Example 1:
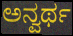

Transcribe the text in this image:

ಅನ್ವರ್ಥ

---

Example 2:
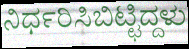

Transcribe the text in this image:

ನಿರ್ಧರಿಸಿಬಿಟ್ಟಿದ್ದಳು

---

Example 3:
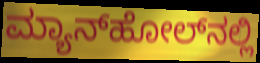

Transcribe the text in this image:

ಮ್ಯಾನ್‌ಹೋಲ್‌ನಲ್ಲಿ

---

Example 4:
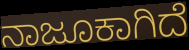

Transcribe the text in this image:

ನಾಜೂಕಾಗಿದೆ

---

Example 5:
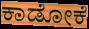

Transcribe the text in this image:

ಕಾಡೋಕೆ